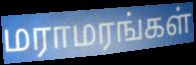
மராமரங்கள்